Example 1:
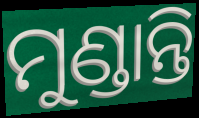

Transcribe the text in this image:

ମୁଣ୍ଡାନ୍ତି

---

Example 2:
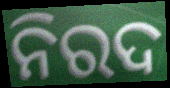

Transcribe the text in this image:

ନିରଦ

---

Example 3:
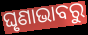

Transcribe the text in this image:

ଘୃଣାଭାବରୁ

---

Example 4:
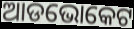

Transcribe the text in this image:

ଆଡଭୋକେଟ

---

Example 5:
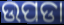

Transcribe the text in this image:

ଉପଡା